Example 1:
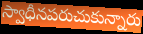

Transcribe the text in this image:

స్వాధీనపరుచుకున్నారు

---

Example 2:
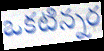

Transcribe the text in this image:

ఒకటిన్నర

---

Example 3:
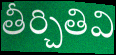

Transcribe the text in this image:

తీర్చితివి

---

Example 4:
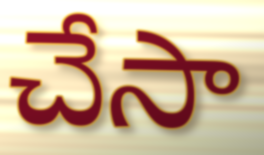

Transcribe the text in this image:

చేసా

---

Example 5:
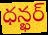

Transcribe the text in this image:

ధన్ఖర్